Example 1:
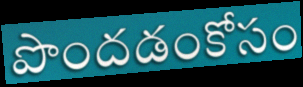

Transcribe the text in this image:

పొందడంకోసం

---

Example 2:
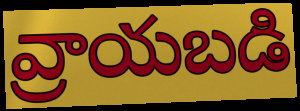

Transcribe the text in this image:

వ్రాయబడి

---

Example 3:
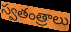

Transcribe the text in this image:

స్వతంత్రాలు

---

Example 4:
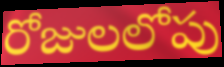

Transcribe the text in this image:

రోజులలోపు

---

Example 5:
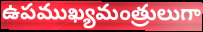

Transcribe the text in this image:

ఉపముఖ్యమంత్రులుగా